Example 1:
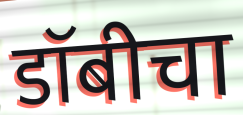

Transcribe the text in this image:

डॉबीचा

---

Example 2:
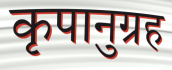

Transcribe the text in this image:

कृपानुग्रह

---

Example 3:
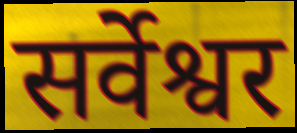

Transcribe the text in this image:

सर्वेश्वर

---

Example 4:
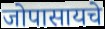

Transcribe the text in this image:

जोपासायचे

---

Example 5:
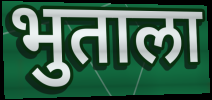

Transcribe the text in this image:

भुताला